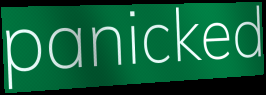
panicked